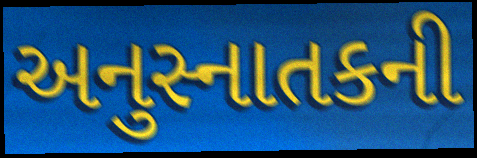
અનુસ્નાતકની